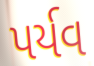
પર્યવ